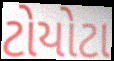
ટોયોટા